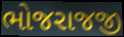
ભોજરાજજી